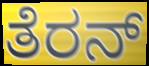
ತೆರನ್